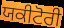
ਯਕੀਟੋਰੀ